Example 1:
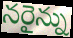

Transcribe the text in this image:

నరైన్ను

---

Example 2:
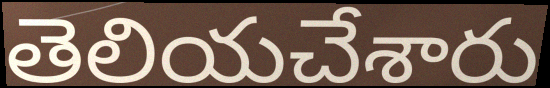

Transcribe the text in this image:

తెలియచేశారు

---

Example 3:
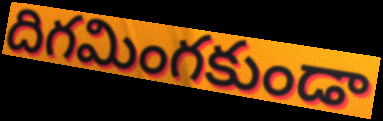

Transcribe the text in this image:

దిగమింగకుండా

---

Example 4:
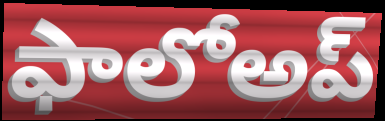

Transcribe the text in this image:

ఫాలోఅప్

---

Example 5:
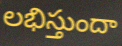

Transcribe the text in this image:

లభిస్తుందా